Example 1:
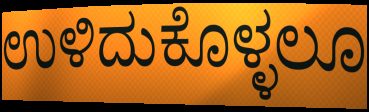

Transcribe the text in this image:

ಉಳಿದುಕೊಳ್ಳಲೂ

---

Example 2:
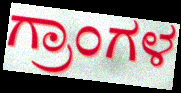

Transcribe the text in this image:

ಗ್ರಾಂಗಳ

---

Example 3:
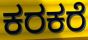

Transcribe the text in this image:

ಕರಕರೆ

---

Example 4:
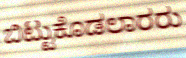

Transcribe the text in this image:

ಬಿಟ್ಟುಕೊಡಲಾರರು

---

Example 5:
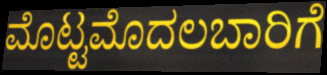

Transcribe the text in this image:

ಮೊಟ್ಟಮೊದಲಬಾರಿಗೆ